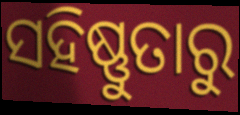
ସହିଷ୍ଣୁତାରୁ